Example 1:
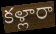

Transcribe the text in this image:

కళ్లారా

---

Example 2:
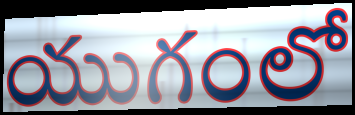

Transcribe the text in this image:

యుగంలో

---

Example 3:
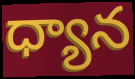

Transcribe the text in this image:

ధ్యాన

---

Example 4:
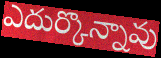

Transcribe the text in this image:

ఎదుర్కొన్నావు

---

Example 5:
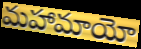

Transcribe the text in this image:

మహామాయో